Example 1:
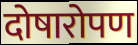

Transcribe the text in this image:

दोषारोपण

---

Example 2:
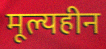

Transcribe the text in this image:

मूल्यहीन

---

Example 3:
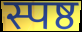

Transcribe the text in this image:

स्पष्ठ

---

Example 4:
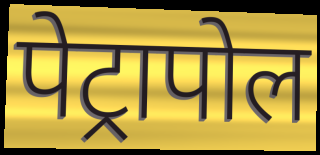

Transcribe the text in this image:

पेट्रापोल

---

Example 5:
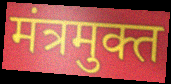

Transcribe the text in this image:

मंत्रमुक्त